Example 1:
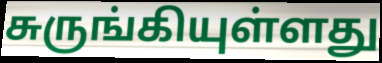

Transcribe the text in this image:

சுருங்கியுள்ளது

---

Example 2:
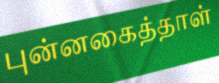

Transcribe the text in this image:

புன்னகைத்தாள்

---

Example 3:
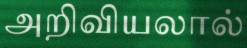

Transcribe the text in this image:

அறிவியலால்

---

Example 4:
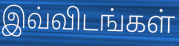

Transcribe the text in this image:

இவ்விடங்கள்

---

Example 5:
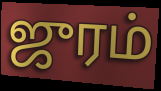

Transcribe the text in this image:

ஜுரம்